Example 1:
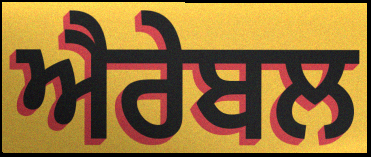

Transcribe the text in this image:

ਐਰੇਬਲ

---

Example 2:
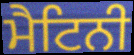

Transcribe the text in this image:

ਮੈਟਿਨੀ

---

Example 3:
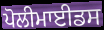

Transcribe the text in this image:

ਪੋਲੀਮਾਈਡਸ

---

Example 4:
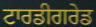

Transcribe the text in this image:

ਟਾਰਡੀਗਰੇਡ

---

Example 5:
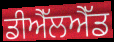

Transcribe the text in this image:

ਡੀਐੱਲਐੱਡ